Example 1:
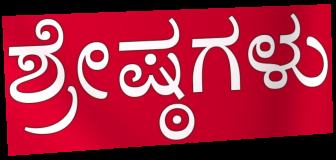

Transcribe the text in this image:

ಶ್ರೇಷ್ಠಗಳು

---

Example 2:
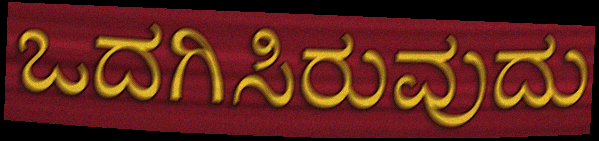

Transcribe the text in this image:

ಒದಗಿಸಿರುವುದು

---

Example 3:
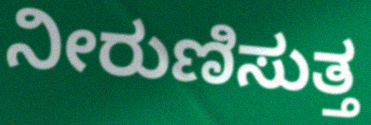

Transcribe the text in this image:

ನೀರುಣಿಸುತ್ತ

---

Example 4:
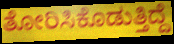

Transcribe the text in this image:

ತೋರಿಸಿಕೊಡುತ್ತಿದ್ದೆ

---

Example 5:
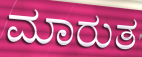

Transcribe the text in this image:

ಮಾರುತ